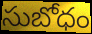
సుబోధం